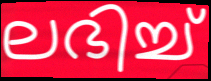
ലഭിച്ച്